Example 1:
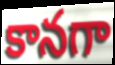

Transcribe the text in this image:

కానగా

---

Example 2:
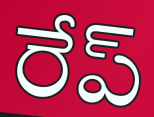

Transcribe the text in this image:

రేప్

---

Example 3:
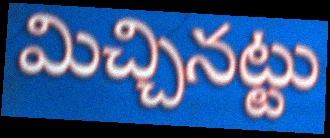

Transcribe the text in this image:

మిచ్చినట్టు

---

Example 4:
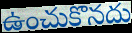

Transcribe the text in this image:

ఉంచుకొనదు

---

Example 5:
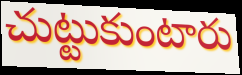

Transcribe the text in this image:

చుట్టుకుంటారు